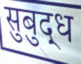
सुबुद्ध